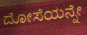
ದೋಸೆಯನ್ನೇ